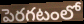
పెరగటంలో